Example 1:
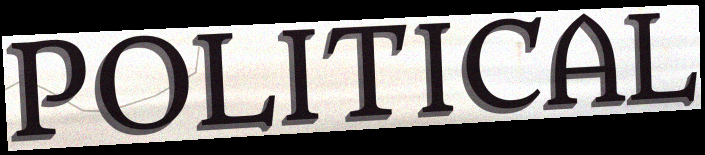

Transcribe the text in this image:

POLITICAL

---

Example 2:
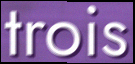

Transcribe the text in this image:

trois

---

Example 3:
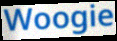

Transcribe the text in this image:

Woogie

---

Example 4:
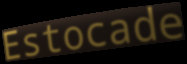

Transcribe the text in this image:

Estocade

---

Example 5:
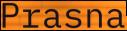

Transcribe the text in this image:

Prasna